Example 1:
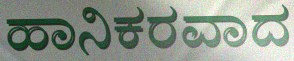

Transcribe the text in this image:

ಹಾನಿಕರವಾದ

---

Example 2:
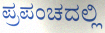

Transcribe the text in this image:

ಪ್ರಪಂಚದಲ್ಲಿ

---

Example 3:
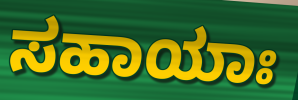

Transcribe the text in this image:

ಸಹಾಯಾಃ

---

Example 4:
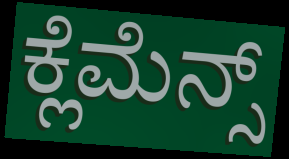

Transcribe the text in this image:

ಕ್ಲೆಮೆನ್ಸ್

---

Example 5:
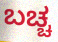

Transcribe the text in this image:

ಬಚ್ಚ